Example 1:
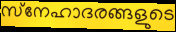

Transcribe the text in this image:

സ്‌നേഹാദരങ്ങളുടെ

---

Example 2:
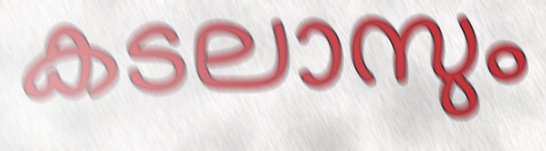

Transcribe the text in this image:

കടലാസും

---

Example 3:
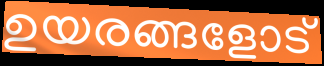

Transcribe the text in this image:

ഉയരങ്ങളോട്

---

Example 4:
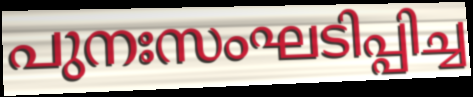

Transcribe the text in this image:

പുനഃസംഘടിപ്പിച്ച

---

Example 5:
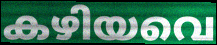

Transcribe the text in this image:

കഴിയവെ